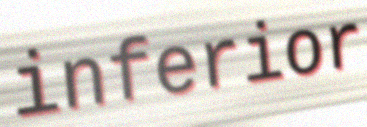
inferior